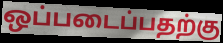
ஒப்படைப்பதற்கு